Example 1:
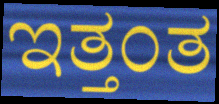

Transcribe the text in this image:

ಇತ್ತಂತ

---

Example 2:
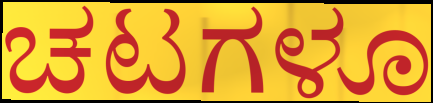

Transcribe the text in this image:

ಚಟಗಳೂ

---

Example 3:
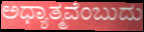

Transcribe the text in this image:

ಅಧ್ಯಾತ್ಮವೆಂಬುದು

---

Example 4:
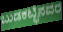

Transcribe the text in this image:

ಬುಡಕಟ್ಟಿನವರ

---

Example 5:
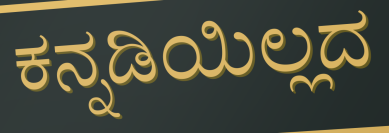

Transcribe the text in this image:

ಕನ್ನಡಿಯಿಲ್ಲದ